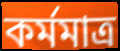
কর্মমাত্র